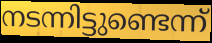
നടന്നിട്ടുണ്ടെന്ന്